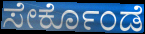
ಸೇರ್ಕೊಂಡೆ